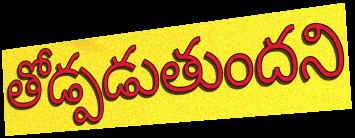
తోడ్పడుతుందని